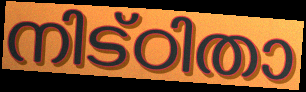
നിട്ഠിതാ